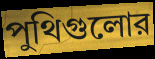
পুথিগুলোর